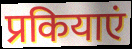
प्रकियाएं